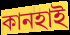
কানহাই